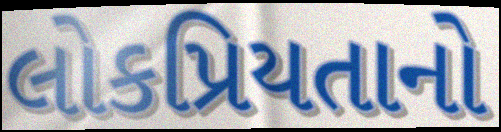
લોકપ્રિયતાનો